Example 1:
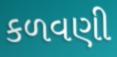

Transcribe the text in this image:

કળવણી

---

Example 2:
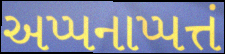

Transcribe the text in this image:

અપ્પનાપ્પત્તં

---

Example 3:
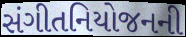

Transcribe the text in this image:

સંગીતનિયોજનની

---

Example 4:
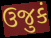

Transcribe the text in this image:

ઉજુકં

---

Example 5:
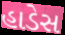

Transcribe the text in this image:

હાડેસ